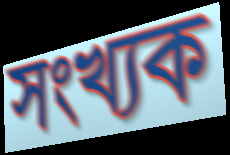
সংখ্যক